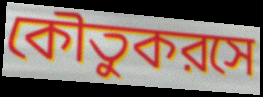
কৌতুকরসে